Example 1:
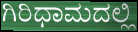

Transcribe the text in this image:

ಗಿರಿಧಾಮದಲ್ಲಿ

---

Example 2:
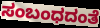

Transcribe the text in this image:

ಸಂಬಂಧದಂತೆ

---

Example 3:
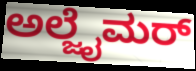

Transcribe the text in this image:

ಅಲ್ಜೈಮರ್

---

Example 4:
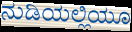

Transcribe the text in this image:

ನುಡಿಯಲ್ಲಿಯೂ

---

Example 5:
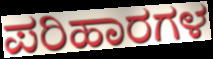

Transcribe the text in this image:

ಪರಿಹಾರಗಳ